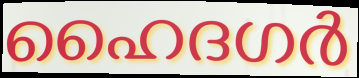
ഹൈദഗർ